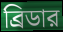
ব্রিডার